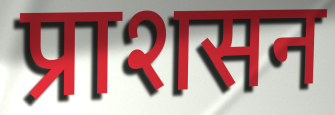
प्राशसन